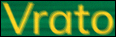
Vrato